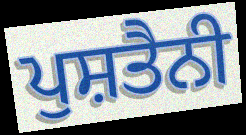
ਪੁਸ਼ਤੈਨੀ